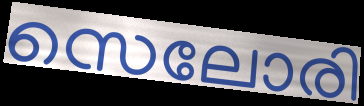
സെലോരി